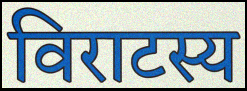
विराटस्य